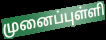
முனைப்புள்ளி